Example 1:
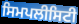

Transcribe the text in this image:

ਸਿਮਪਲੀਸਿਟੀ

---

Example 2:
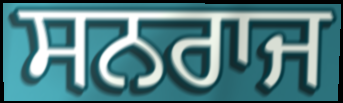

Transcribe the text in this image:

ਸਨਰਾਜ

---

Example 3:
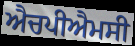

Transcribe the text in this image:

ਐਚਪੀਐਮਸੀ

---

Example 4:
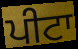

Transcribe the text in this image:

ਪੀਟਾ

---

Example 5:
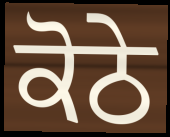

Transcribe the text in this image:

ਕੋਠੇ